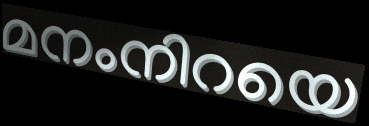
മനംനിറയെ